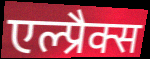
एल्प्रैक्स